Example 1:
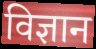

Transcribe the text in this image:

विज्ञान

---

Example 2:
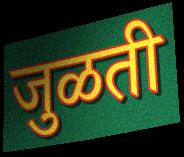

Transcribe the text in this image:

जुळती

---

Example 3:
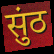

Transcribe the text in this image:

सुंठ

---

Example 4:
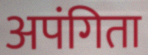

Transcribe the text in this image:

अपंगिता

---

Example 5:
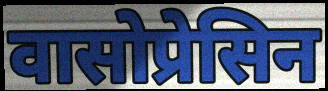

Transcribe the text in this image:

वासोप्रेसिन